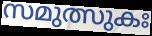
സമുത്സുകഃ